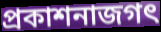
প্রকাশনাজগৎ